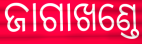
ଜାଗାଖଣ୍ଡେ